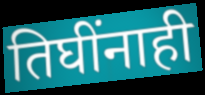
तिघींनाही